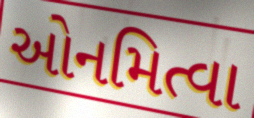
ઓનમિત્વા